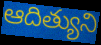
ఆదిత్యుని